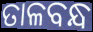
ତାଳବନ୍ଧ